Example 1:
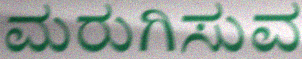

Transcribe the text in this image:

ಮರುಗಿಸುವ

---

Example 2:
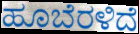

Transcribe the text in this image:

ಹೂಬೆರಳಿದೆ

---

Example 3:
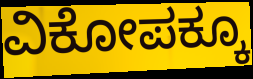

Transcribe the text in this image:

ವಿಕೋಪಕ್ಕೂ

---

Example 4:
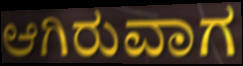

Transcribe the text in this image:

ಆಗಿರುವಾಗ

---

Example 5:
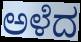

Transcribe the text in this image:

ಅಳೆದ